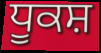
ਧੂਕਸ਼